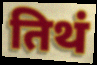
तिथं